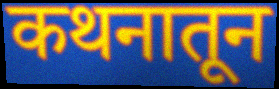
कथनातून